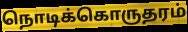
நொடிக்கொருதரம்